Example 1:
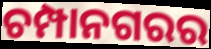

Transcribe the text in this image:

ଚମ୍ପାନଗରର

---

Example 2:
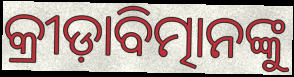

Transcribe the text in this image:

କ୍ରୀଡ଼ାବିତ୍ମାନଙ୍କୁ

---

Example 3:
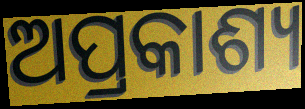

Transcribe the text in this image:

ଅପ୍ରକାଶ୍ୟ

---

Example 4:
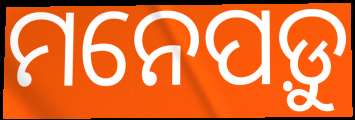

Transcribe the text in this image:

ମନେପଡ଼ୁ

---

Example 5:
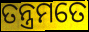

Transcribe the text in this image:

ତନ୍ତ୍ରମତେ